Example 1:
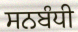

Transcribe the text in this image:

ਸਨਬੰਧੀ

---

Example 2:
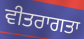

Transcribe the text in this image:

ਵੀਤਰਾਗਤਾ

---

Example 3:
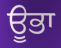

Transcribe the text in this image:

ਊਭਾ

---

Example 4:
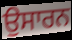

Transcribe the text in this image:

ਉਸਾਰਨ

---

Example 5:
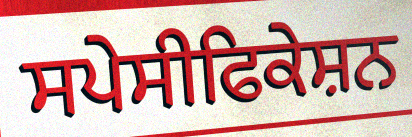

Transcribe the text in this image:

ਸਪੇਸੀਫਿਕੇਸ਼ਨ